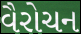
વૈરોચન